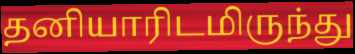
தனியாரிடமிருந்து